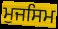
ਮੁਜਸਿਮ